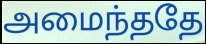
அமைந்ததே